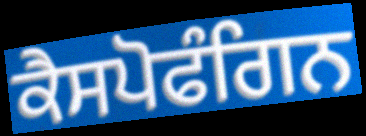
ਕੈਸਪੋਫੰਗਿਨ